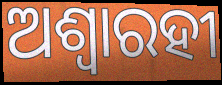
ଅଶ୍ୱାରହୀ